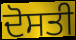
ਦੋਸਤੀ